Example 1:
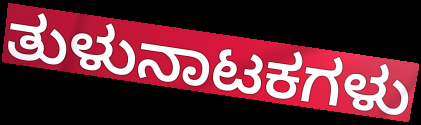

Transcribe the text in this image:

ತುಳುನಾಟಕಗಳು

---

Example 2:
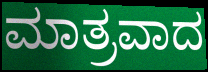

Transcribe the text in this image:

ಮಾತ್ರವಾದ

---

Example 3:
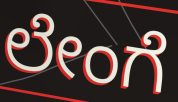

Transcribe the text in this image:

ಲೇಂಗೆ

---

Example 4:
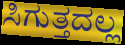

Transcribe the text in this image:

ಸಿಗುತ್ತದಲ್ಲ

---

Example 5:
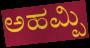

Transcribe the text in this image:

ಅಹಮ್ಪಿ